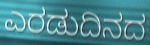
ಎರಡುದಿನದ